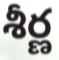
శీర్ణ